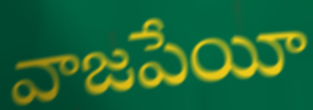
వాజపేయీ